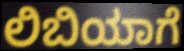
ಲಿಬಿಯಾಗೆ